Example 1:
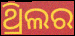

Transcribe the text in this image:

ଥ୍ରିଲର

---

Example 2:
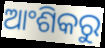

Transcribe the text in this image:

ଆଂଶିକରୁ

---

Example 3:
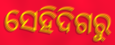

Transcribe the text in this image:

ସେହିଦିଗରୁ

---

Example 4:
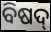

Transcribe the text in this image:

ବିଷଦ୍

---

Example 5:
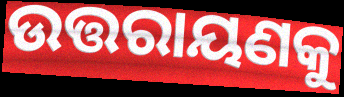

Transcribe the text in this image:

ଉତ୍ତରାୟଣକୁ